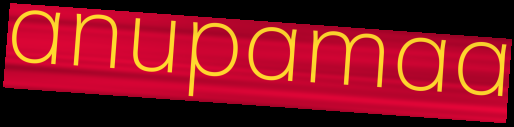
anupamaa